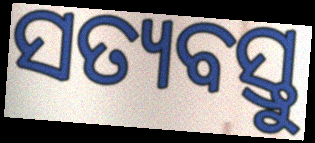
ସତ୍ୟବସ୍ତୁ